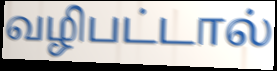
வழிபட்டால்